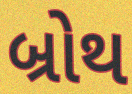
બ્રોથ